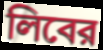
লিবের